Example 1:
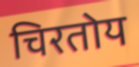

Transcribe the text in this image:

चिरतोय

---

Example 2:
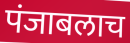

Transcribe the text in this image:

पंजाबलाच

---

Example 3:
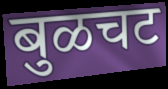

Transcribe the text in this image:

बुळचट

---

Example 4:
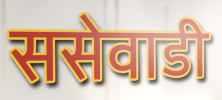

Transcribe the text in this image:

ससेवाडी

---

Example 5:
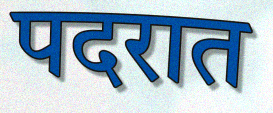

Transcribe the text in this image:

पदरात